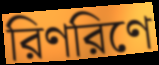
রিণরিণে